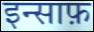
इन्साफ़